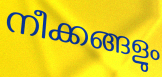
നീക്കങ്ങളും